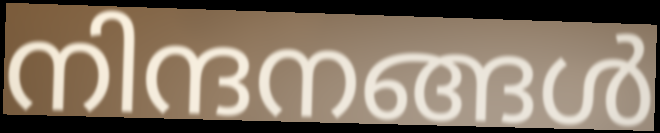
നിന്ദനങ്ങൾ